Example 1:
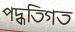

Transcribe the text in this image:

পদ্ধতিগত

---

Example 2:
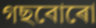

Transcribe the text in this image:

গছবোৰো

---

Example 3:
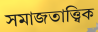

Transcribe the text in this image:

সমাজতাত্ত্বিক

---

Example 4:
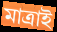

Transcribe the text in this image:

মাত্ৰাই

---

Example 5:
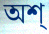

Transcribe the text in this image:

অশ্